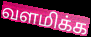
வளமிக்க